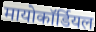
मायोकॉर्डियल